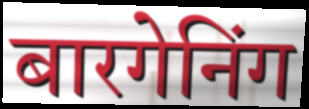
बारगेनिंग